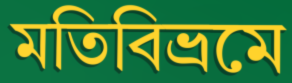
মতিবিভ্রমে